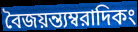
বৈজয়ন্ত্যম্বরাদিকং